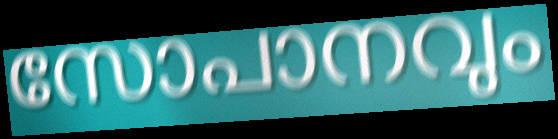
സോപാനവും